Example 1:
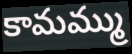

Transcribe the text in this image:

కామమ్ము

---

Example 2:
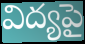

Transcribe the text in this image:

విద్యపై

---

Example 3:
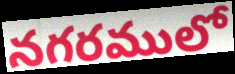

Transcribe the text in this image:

నగరములో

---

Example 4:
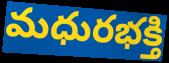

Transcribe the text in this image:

మధురభక్తి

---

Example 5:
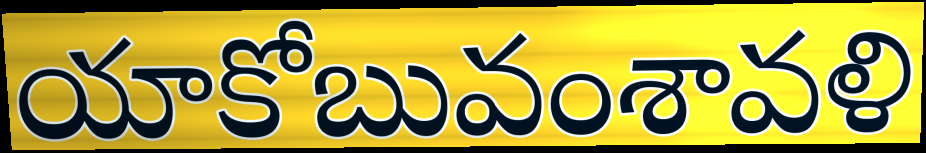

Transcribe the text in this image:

యాకోబువంశావళి